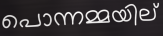
പൊന്നമ്മയില്